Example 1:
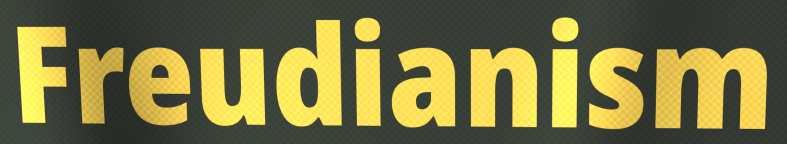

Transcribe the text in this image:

Freudianism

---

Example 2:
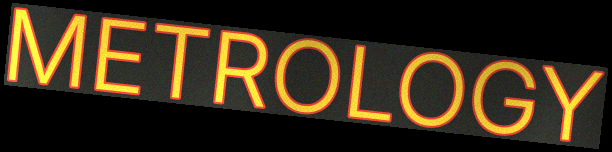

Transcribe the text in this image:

METROLOGY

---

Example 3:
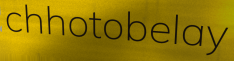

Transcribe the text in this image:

chhotobelay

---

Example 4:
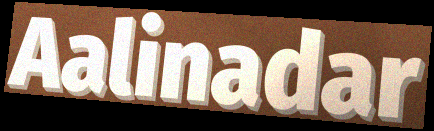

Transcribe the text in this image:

Aalinadar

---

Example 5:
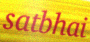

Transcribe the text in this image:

satbhai